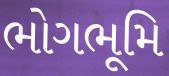
ભોગભૂમિ